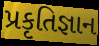
પ્રકૃતિજ્ઞાન